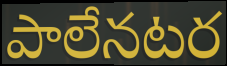
పాలేనటర